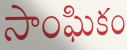
సాంఘికం